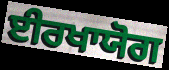
ਈਰਖਾਯੋਗ